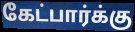
கேட்பார்க்கு